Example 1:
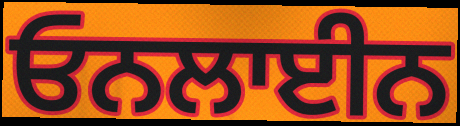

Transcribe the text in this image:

ਓਨਲਾਈਨ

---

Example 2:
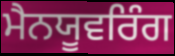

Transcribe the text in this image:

ਮੈਨਯੂਵਰਿੰਗ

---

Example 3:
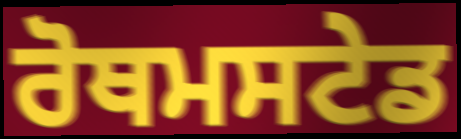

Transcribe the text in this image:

ਰੋਥਮਸਟੇਡ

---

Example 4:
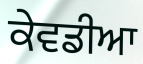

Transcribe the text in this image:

ਕੇਵਡੀਆ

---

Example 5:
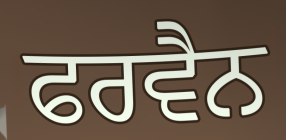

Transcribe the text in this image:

ਫਰਵੈਨ